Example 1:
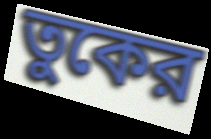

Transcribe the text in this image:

তুকের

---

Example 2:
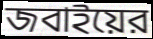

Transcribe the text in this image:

জবাইয়ের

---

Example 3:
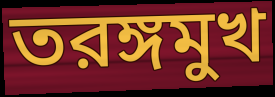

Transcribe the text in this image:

তরঙ্গমুখ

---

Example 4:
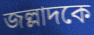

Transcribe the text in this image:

জল্লাদকে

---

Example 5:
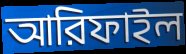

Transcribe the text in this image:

আরিফাইল